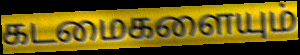
கடமைகளையும்